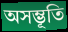
অসম্ভূতি